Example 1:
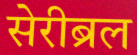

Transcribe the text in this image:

सेरीब्रल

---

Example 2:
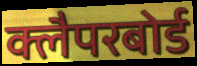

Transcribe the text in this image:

क्लैपरबोर्ड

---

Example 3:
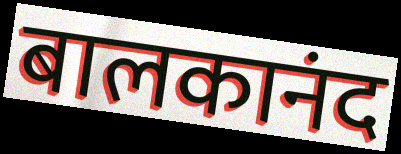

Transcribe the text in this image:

बालकानंद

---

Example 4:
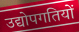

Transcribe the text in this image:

उद्योपगतियों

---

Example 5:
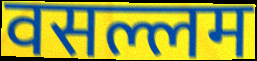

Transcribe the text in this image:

वसल्लम